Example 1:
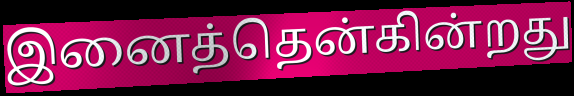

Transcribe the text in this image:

இனைத்தென்கின்றது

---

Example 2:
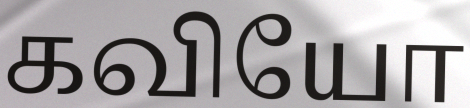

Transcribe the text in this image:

கவியோ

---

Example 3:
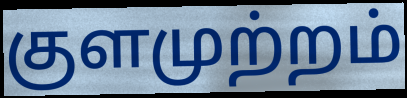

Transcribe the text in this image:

குளமுற்றம்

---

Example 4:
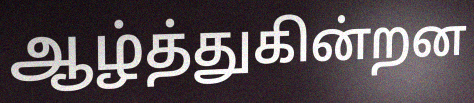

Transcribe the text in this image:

ஆழ்த்துகின்றன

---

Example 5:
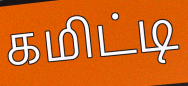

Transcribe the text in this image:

கமிட்டி